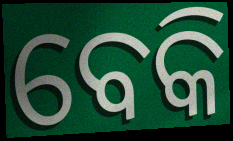
ବେକି